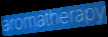
aromatherapy